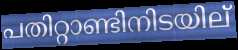
പതിറ്റാണ്ടിനിടയില്